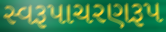
સ્વરૂપાચરણરૂપ